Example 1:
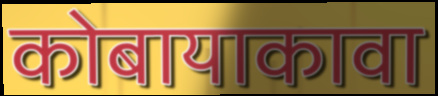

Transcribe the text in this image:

कोबायाकावा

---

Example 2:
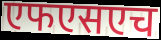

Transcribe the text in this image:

एफएसएच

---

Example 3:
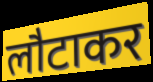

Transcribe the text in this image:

लौटाकर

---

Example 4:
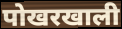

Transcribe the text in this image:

पोखरखाली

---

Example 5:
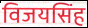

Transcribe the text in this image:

विजयसिंह